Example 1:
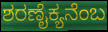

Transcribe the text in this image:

ಶರಣೈಕ್ಯನೆಂಬ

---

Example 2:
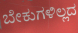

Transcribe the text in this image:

ಬೇಕುಗಳಿಲ್ಲದ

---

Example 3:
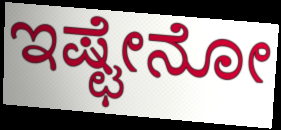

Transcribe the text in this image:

ಇಷ್ಟೇನೋ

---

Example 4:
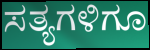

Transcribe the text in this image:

ಸತ್ಯಗಳಿಗೂ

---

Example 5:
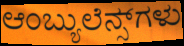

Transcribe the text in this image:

ಆಂಬ್ಯುಲೆನ್ಸ್‌ಗಳು